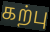
கற்பு